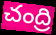
చంద్రి